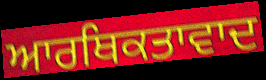
ਆਰਥਿਕਤਾਵਾਦ